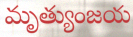
మృత్యుంజయ